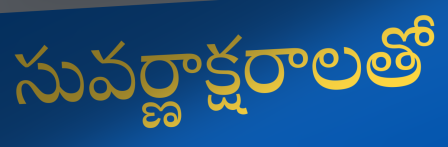
సువర్ణాక్షరాలతో